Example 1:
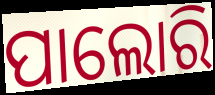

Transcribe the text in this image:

ପାଲୋରି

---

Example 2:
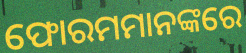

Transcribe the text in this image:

ଫୋରମମାନଙ୍କରେ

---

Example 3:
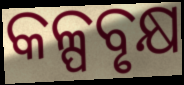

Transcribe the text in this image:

କଳ୍ପବୃକ୍ଷ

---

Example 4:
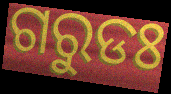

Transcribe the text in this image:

ଗରୁଡଃ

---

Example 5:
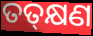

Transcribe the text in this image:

ତତ୍‌କ୍ଷଣ